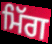
ਮਿੱਗ